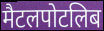
मैटलपोटलिब